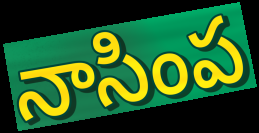
నాసింప